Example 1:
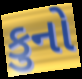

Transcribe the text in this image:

કુનો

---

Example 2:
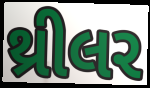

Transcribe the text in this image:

થ્રીલર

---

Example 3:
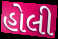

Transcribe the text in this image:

હોલી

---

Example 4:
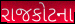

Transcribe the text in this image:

રાજકોટના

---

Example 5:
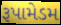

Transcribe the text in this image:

રૂપામેડમ